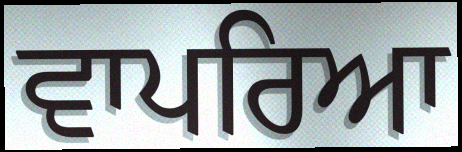
ਵਾਪਰਿਆ